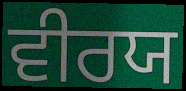
ਵੀਰਯ